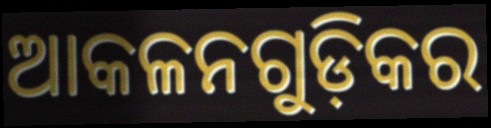
ଆକଳନଗୁଡ଼ିକର